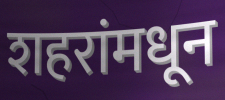
शहरांमधून